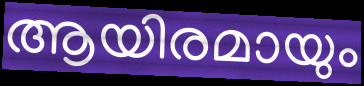
ആയിരമായും